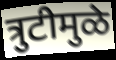
त्रुटीमुळे